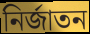
নিৰ্জাতন